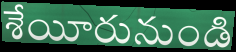
శేయీరునుండి